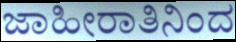
ಜಾಹೀರಾತಿನಿಂದ